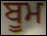
ਬੂਮ